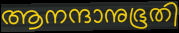
ആനന്ദാനുഭൂതി